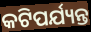
କଟିପର୍ଯ୍ୟନ୍ତ